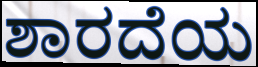
ಶಾರದೆಯ